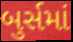
બુર્સમાં